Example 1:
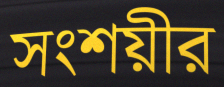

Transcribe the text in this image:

সংশয়ীর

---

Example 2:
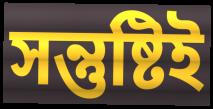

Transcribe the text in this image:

সন্তুষ্টিই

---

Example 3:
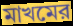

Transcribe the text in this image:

মাখমের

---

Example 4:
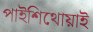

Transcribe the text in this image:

পাইশিথোয়াই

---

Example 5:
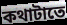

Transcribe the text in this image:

কথাটাতে